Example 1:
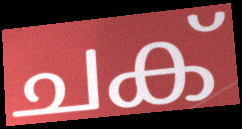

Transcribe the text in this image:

ചക്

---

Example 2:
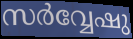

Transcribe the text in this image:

സർവ്വേഷു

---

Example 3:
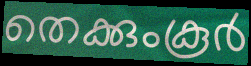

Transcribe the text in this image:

തെക്കുംകൂർ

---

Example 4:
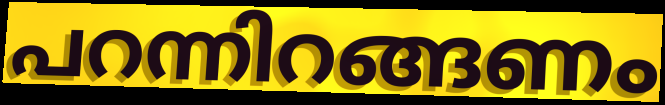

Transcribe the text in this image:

പറന്നിറങ്ങണം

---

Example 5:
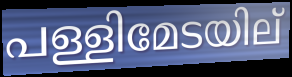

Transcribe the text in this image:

പള്ളിമേടയില്